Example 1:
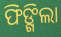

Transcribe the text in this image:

ଫିଙ୍ଗିଲା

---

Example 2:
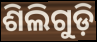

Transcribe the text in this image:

ଶିଲିଗୁଡ଼ି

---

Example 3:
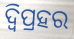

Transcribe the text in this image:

ଦ୍ବିପ୍ରହର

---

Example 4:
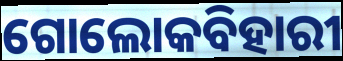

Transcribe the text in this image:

ଗୋଲୋକବିହାରୀ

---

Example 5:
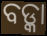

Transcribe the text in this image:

ବଡ୍କା